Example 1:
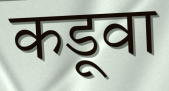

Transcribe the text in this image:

कडूवा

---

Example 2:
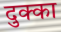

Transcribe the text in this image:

दुक्‍का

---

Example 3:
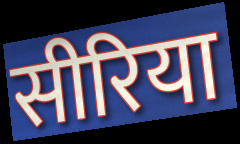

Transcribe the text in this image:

सीरिया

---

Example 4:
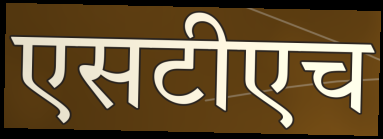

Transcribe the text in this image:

एसटीएच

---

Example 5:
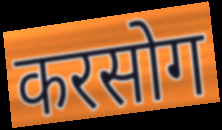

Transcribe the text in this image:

करसोग